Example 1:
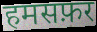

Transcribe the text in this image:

हमसफ़र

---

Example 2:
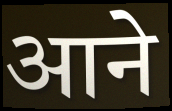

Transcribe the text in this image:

आने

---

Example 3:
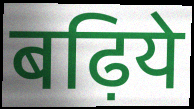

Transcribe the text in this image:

बढ़िये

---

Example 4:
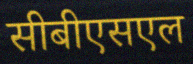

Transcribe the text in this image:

सीबीएसएल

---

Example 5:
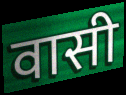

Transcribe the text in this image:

वासी